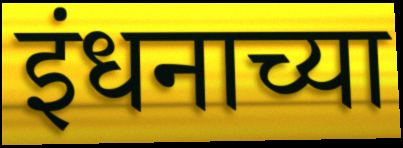
इंधनाच्या